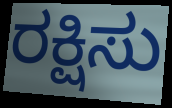
ರಕ್ಷಿಸು